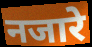
नजारे